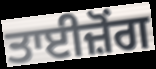
ਤਾਈਜ਼ੋਂਗ